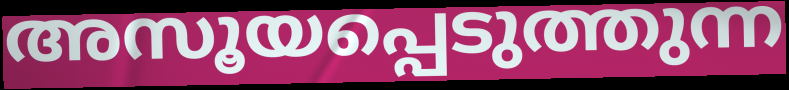
അസൂയപ്പെടുത്തുന്ന